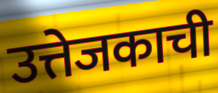
उत्तेजकाची